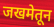
जखमेतून